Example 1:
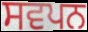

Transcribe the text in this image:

ਸਵਪਨ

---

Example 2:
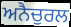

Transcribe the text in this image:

ਅਨੈਚੁਰਲ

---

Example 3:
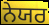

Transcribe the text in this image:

ਨੇਯਰ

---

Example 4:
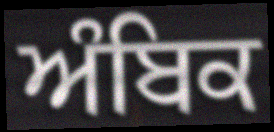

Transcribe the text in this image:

ਅੰਬਿਕ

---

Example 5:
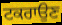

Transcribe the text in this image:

ਟਕਰਾਉਣ